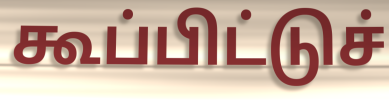
கூப்பிட்டுச்